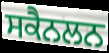
ਸਕੈਨਲਨ